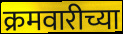
क्रमवारीच्या